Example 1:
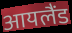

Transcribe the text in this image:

आयलैंड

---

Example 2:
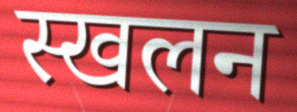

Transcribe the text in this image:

स्खलन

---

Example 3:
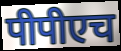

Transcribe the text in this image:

पीपीएच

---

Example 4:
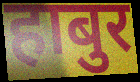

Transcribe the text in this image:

हाबुर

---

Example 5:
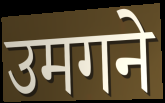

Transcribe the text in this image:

उमगने